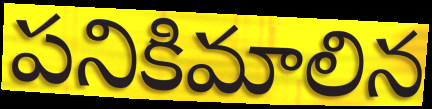
పనికిమాలిన